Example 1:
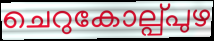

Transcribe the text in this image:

ചെറുകോല്പ്പുഴ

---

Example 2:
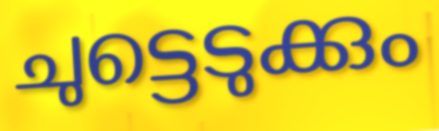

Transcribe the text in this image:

ചുട്ടെടുക്കും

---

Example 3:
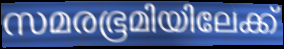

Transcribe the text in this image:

സമരഭൂമിയിലേക്ക്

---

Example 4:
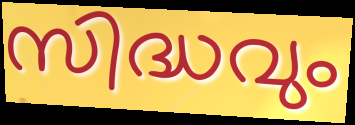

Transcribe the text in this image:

സിദ്ധവും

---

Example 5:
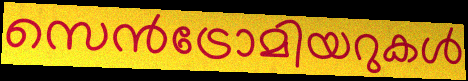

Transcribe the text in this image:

സെൻട്രോമിയറുകൾ